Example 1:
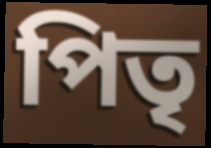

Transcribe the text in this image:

পিতৃ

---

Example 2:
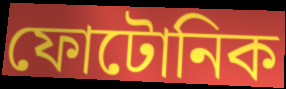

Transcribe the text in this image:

ফোটোনিক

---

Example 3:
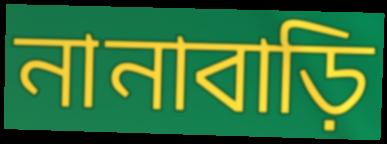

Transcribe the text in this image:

নানাবাড়ি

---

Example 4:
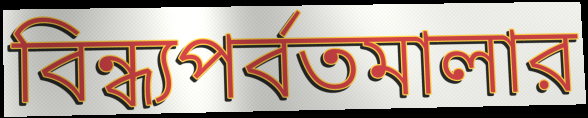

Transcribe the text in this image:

বিন্ধ্যপর্বতমালার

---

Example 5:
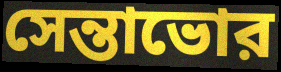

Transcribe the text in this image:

সেন্তাভোর